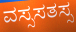
ವಸ್ಸಸತಸ್ಸ